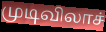
முடிவிலாச்